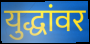
युद्धांवर